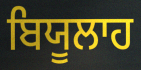
ਬਿਯੂਲਾਹ